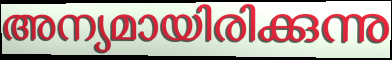
അന്യമായിരിക്കുന്നു